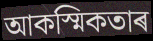
আকস্মিকতাৰ